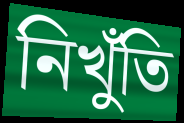
নিখুঁতি